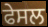
ਫੇਸਲ